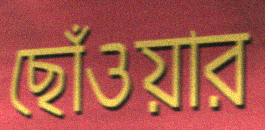
ছোঁওয়ার